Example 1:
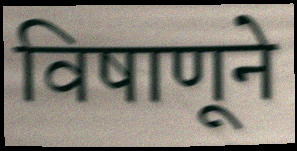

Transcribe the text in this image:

विषाणूने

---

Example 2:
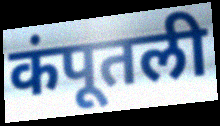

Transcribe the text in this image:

कंपूतली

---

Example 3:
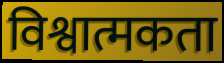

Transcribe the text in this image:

विश्वात्मकता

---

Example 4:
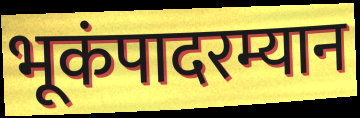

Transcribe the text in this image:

भूकंपादरम्यान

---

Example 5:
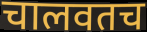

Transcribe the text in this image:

चालवतच